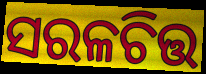
ସରଳଚିତ୍ତ